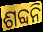
ଶବ୍ଦନି